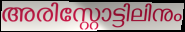
അരിസ്റ്റോട്ടിലിനും